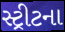
સ્ટ્રીટના